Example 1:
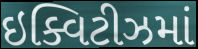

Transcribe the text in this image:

ઇક્વિટીઝમાં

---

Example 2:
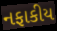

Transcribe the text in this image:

નફાકીય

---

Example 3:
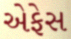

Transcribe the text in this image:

એફેસ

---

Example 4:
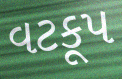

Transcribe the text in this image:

વટકૂપ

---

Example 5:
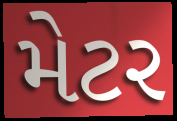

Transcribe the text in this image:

મેટર